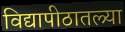
विद्यापीठातल्या